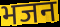
भजन